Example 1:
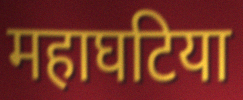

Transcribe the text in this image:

महाघटिया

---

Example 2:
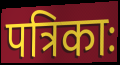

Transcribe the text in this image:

पत्रिकाः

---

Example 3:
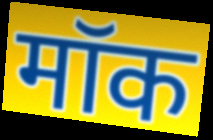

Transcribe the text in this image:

मॉक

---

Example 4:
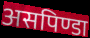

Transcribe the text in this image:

असपिण्डा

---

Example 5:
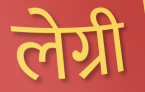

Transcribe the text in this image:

लेग्री